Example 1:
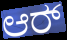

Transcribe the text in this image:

ಆರ್‍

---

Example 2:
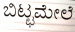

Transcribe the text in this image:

ಬಿಟ್ಟಮೇಲೆ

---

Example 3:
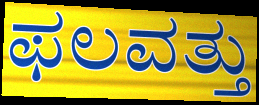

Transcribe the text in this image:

ಫಲವತ್ತು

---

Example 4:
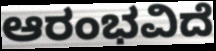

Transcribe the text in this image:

ಆರಂಭವಿದೆ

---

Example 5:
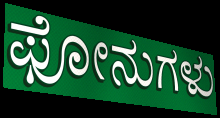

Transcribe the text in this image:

ಫೋನುಗಳು